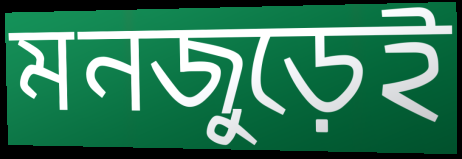
মনজুড়েই